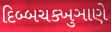
દિબ્બચક્ખુઞાણે